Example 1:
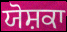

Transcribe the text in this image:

ਯੋਸ਼ਕਾ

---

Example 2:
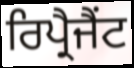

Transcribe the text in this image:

ਰਿਪ੍ਰੈਜੈਂਟ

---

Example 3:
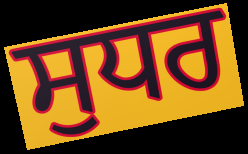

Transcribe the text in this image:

ਸੁਧਰ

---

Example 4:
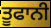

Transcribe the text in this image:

ਤੂਫਾਨੀ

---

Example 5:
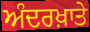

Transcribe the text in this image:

ਅੰਦਰਖ਼ਾਤੇ